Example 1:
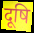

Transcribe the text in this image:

दूषि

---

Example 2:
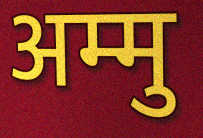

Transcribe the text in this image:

अम्मु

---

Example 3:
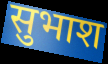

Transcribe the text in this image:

सुभाश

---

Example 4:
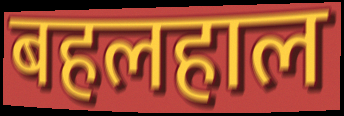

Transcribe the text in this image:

बहलहाल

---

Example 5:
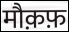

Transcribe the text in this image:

मौक़फ़